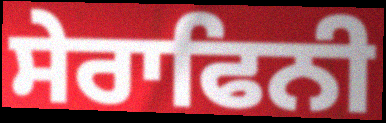
ਸੇਰਾਫਿਨੀ